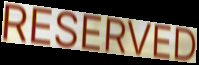
RESERVED